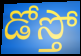
డోస్తో